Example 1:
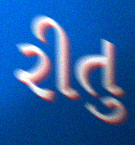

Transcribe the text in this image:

રીતુ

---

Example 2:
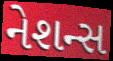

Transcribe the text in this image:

નેશન્સ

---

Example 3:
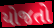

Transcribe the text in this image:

યોજતો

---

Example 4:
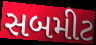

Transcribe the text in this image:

સબમીટ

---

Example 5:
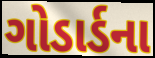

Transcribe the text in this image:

ગોડાર્ડના